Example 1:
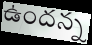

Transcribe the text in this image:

ఉందన్న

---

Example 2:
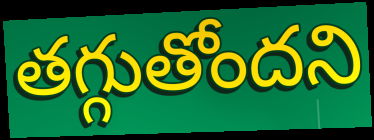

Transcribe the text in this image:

తగ్గుతోందని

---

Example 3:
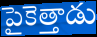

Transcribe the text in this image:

పైకెత్తాడు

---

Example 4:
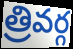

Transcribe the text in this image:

త్రివర్గ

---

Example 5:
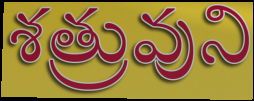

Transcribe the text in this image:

శత్రువుని